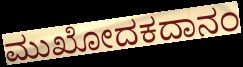
ಮುಖೋದಕದಾನಂ